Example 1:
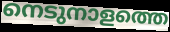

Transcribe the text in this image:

നെടുനാളത്തെ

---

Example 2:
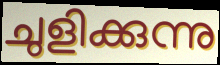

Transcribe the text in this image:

ചുളിക്കുന്നു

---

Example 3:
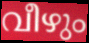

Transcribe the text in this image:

വീഴും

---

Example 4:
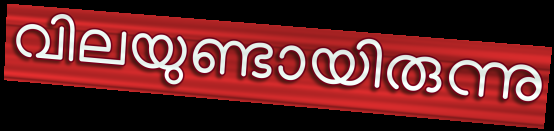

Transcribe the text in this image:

വിലയുണ്ടായിരുന്നു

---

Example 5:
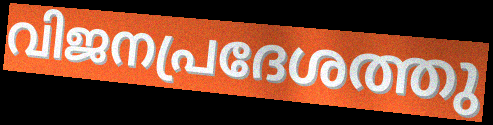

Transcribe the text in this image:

വിജനപ്രദേശത്തു